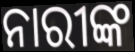
ନାରୀଙ୍କ